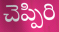
చెప్పిరి